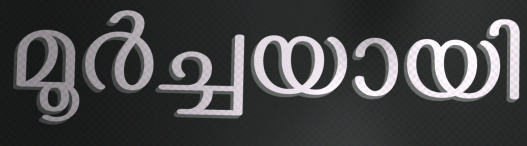
മൂർച്ചയായി